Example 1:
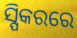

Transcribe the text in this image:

ସ୍ପିକରରେ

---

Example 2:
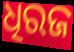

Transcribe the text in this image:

ଧିରଜ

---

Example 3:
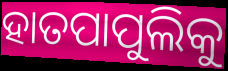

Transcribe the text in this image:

ହାତପାପୁଲିକୁ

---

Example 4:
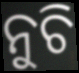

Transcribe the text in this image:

ନୁଚି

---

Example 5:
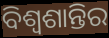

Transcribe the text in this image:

ବିଶ୍ୱଶାନ୍ତିର